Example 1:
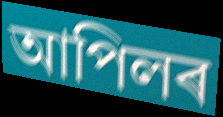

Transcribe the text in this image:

আপিলৰ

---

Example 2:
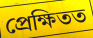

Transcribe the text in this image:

প্ৰেক্ষিতত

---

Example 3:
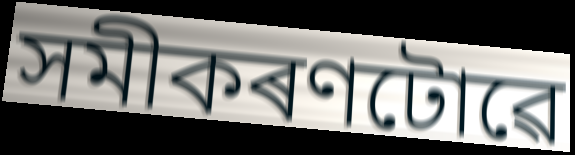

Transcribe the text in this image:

সমীকৰণটোৱে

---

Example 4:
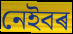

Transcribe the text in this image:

নেইবৰ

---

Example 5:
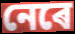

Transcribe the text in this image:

নেৰে